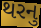
થરનુ